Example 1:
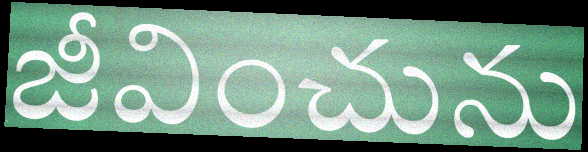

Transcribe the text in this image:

జీవించును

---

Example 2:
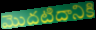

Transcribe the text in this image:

మొదటిదానికి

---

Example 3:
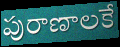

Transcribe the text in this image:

పురాణాలకే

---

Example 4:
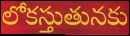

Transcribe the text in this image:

లోకస్తుతునకు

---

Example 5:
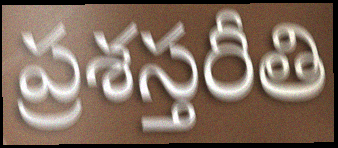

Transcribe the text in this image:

ప్రశస్తరీతి